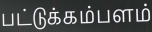
பட்டுக்கம்பளம்